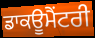
ਡਾਕਊਮੈਂਟਰੀ